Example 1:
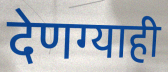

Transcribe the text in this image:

देणग्याही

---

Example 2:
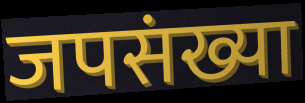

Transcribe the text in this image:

जपसंख्या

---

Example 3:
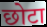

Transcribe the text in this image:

छोटा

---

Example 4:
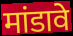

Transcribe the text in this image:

मांडावे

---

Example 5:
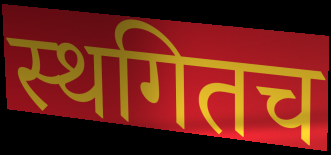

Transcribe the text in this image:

स्थगितच